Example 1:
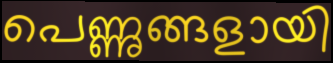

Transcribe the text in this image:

പെണ്ണുങ്ങളായി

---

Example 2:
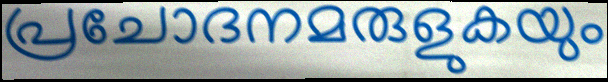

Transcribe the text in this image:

പ്രചോദനമരുളുകയും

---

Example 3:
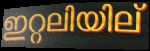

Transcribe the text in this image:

ഇറ്റലിയില്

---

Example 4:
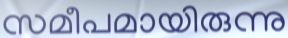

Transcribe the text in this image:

സമീപമായിരുന്നു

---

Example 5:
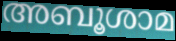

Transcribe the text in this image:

അബൂശാമ